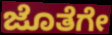
ಜೊತೆಗೇ